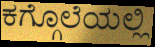
ಕಗ್ಗೊಲೆಯಲ್ಲಿ